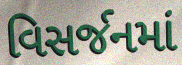
વિસર્જનમાં